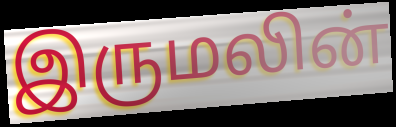
இருமலின்